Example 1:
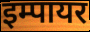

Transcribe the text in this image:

इम्पायर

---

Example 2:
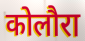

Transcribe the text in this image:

कोलौरा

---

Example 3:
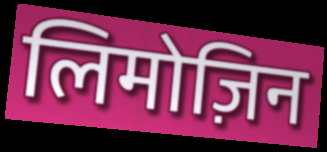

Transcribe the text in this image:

लिमोज़िन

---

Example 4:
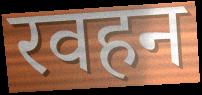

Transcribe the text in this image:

रवहन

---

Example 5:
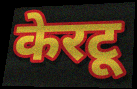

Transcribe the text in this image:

केरटू